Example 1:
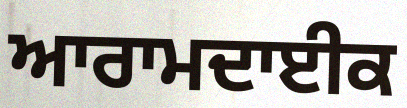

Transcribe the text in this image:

ਆਰਾਮਦਾਈਕ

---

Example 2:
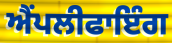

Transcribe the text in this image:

ਐਂਪਲੀਫਾਇੰਗ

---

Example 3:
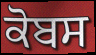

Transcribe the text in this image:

ਕੋਬਸ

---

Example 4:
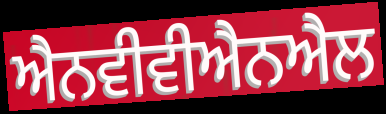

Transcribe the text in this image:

ਐਨਵੀਵੀਐਨਐਲ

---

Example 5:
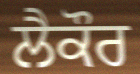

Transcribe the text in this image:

ਲੈਕੌਰ